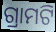
ଗ୍ରାମଟି